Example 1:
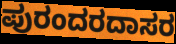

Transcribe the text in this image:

ಪುರಂದರದಾಸರ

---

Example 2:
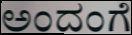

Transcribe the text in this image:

ಅಂದಂಗೆ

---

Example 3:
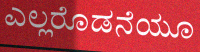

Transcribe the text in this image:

ಎಲ್ಲರೊಡನೆಯೂ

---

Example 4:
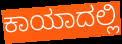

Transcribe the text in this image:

ಕಾಯಾದಲ್ಲಿ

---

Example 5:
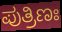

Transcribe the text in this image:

ಪುತ್ರಿಣಃ